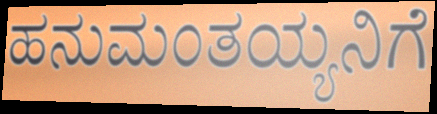
ಹನುಮಂತಯ್ಯನಿಗೆ